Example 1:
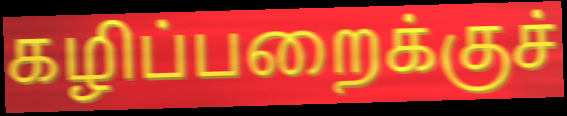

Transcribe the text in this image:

கழிப்பறைக்குச்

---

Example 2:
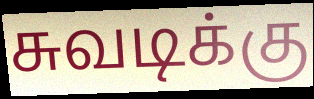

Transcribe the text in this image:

சுவடிக்கு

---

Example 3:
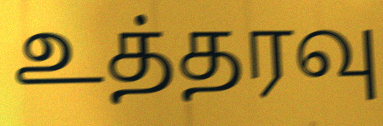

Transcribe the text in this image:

உத்தரவு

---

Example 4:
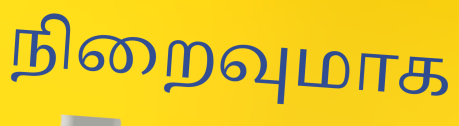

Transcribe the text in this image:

நிறைவுமாக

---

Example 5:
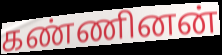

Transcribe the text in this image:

கண்ணினன்